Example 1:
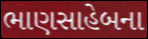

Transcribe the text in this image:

ભાણસાહેબના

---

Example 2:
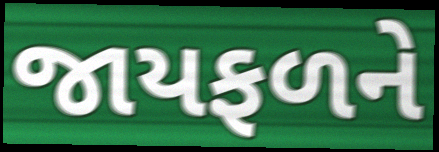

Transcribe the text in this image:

જાયફળને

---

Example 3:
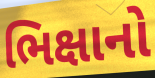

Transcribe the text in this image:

ભિક્ષાનો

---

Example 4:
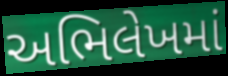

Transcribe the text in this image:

અભિલેખમાં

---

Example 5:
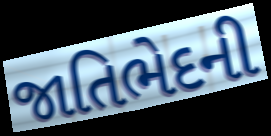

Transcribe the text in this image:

જાતિભેદની